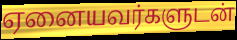
ஏனையவர்களுடன்